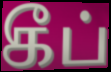
கீப்